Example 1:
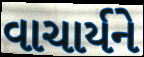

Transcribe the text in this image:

વાચાર્યને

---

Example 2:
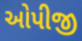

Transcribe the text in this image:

ઓપીજી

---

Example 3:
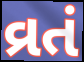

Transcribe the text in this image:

વ્રતં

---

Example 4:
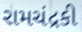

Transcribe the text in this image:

રામચંદ્રકી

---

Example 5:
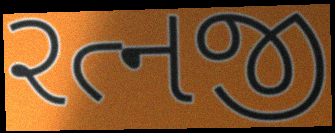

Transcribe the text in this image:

રત્નજી